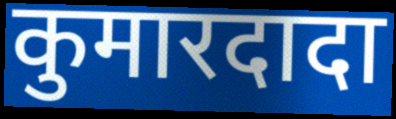
कुमारदादा